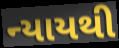
ન્યાયથી